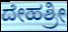
ದೇಹಶ್ರೀ